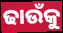
ଢାଉଁକୁ